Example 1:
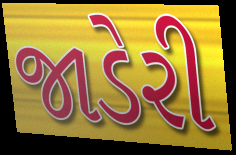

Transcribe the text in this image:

જાડેરી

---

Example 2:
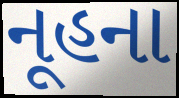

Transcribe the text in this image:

નૂહના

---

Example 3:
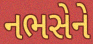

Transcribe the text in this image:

નભસેને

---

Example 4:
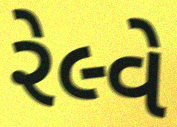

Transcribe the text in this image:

રેલ્વે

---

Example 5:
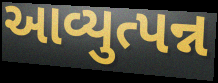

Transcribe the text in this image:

આવ્યુત્પન્ન